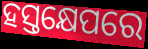
ହସ୍ତକ୍ଷେପରେ